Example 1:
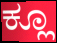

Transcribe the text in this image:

ಕ್ಲೂ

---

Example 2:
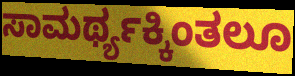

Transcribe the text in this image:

ಸಾಮರ್ಥ್ಯಕ್ಕಿಂತಲೂ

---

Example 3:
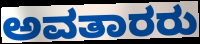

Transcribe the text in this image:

ಅವತಾರರು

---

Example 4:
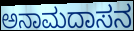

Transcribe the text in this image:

ಅನಾಮದಾಸನ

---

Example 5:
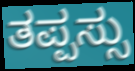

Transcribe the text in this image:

ತಪ್ಪಸ್ಸು